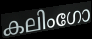
കലിംഗോ